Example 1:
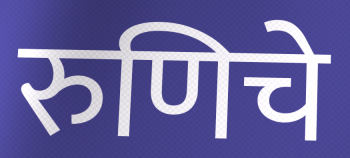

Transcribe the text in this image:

रुणिचे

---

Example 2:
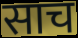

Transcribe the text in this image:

साच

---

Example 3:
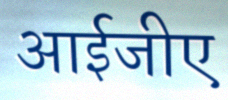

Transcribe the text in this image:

आईजीए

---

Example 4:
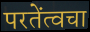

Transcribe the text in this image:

परतेंत्वचा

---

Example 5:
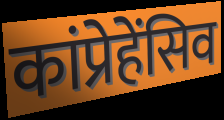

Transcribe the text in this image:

कांप्रेहेंसिव